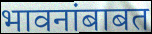
भावनांबाबत